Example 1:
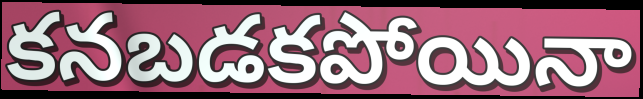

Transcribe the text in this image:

కనబడకపోయినా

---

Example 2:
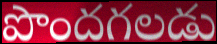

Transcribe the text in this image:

పొందగలడు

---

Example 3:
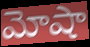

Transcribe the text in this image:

మోషా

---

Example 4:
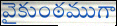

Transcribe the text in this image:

వైకుంఠముగా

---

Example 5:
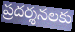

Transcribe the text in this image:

ప్రదర్శనలకు